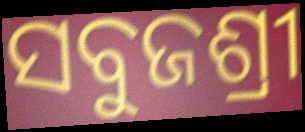
ସବୁଜଶ୍ରୀ